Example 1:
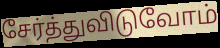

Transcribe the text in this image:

சேர்த்துவிடுவோம்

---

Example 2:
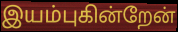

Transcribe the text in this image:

இயம்புகின்றேன்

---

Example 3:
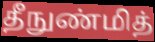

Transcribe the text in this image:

தீநுண்மித்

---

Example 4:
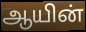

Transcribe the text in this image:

ஆயின்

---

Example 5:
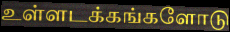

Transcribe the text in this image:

உள்ளடக்கங்களோடு